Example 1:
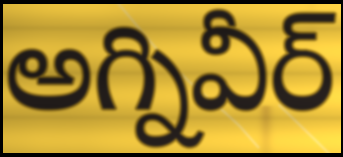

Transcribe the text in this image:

అగ్నివీర్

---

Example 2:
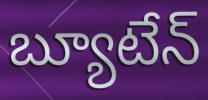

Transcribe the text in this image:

బ్యూటేన్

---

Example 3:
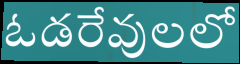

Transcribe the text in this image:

ఓడరేవులలో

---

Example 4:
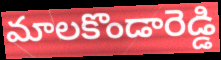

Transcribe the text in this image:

మాలకొండారెడ్డి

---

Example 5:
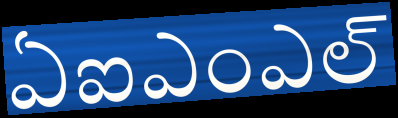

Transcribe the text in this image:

ఏఐఎంఎల్